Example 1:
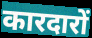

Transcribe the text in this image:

कारदारों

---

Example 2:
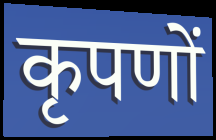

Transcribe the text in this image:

कृपणों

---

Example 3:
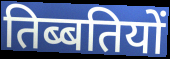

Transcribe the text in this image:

तिब्बतियों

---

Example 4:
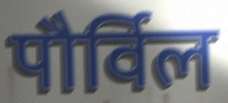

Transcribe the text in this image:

पौर्विल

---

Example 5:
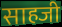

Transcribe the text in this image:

साहजी